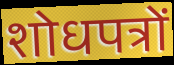
शोधपत्रों